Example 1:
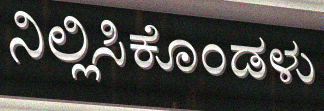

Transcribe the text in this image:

ನಿಲ್ಲಿಸಿಕೊಂಡಳು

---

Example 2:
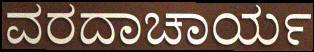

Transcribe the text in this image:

ವರದಾಚಾರ್ಯ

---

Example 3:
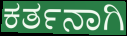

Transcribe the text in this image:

ಕರ್ತನಾಗಿ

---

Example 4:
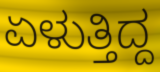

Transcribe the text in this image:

ಏಳುತ್ತಿದ್ದ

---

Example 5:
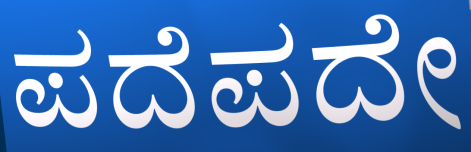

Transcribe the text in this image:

ಪದೆಪದೇ